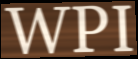
WPI